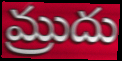
మ్రుదు